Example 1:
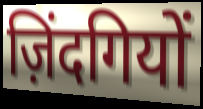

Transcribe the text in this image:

ज़िंदगियों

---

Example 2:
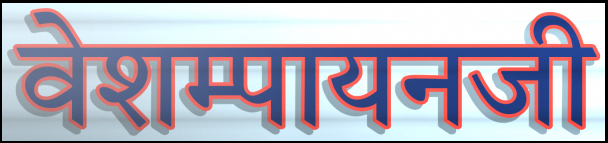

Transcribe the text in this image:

वेशम्पायनजी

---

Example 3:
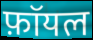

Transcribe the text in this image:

फ़ॉयल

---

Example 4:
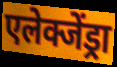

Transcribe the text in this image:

एलेक्जेंड्रा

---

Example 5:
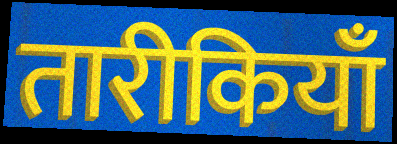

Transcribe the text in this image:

तारीकियाँ